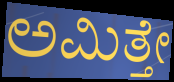
ಅಮಿತ್ತೇ